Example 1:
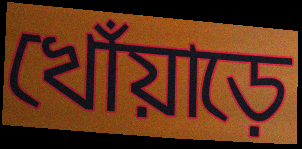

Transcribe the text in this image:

খোঁয়াড়ে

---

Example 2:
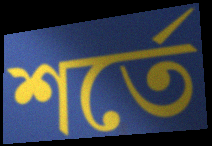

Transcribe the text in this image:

শর্তে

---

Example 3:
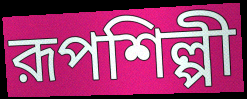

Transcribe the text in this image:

রূপশিল্পী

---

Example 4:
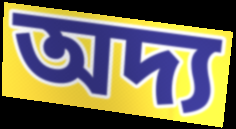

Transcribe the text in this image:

অদ্য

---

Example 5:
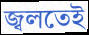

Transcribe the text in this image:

জ্বলতেই